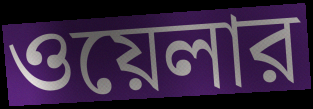
ওয়েলার